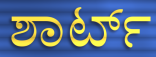
ಶಾರ್ಟ್